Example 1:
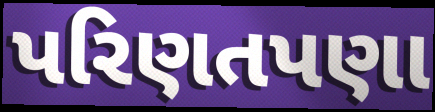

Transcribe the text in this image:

પરિણતપણા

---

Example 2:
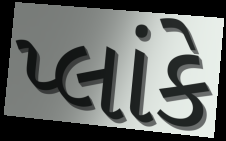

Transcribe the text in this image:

પ્લાંકે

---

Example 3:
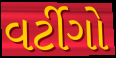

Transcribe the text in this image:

વર્ટીગો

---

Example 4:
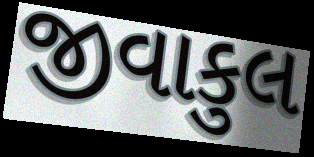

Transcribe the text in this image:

જીવાકુલ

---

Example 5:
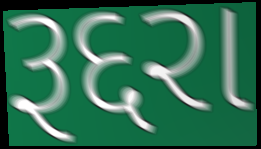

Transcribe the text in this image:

રૂદ્દરા